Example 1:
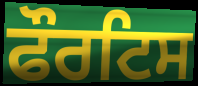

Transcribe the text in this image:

ਫੌਰਟਿਸ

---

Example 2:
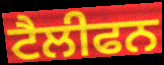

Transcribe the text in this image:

ਟੈਲੀਫਨ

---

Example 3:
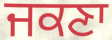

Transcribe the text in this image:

ਜਕਣਾ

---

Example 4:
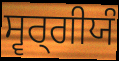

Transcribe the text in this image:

ਸ੍ਵਰ੍ਗੀਯੰ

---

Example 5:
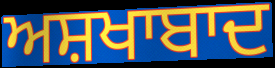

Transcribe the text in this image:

ਅਸ਼ਖਾਬਾਦ